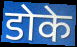
डोके